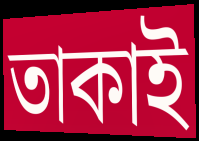
তাকাই